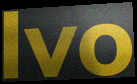
Ivo